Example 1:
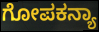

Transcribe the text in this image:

ಗೋಪಕನ್ಯಾ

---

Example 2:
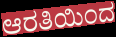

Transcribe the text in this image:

ಆರತಿಯಿಂದ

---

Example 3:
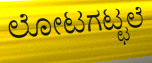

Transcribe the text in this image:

ಲೋಟಗಟ್ಟಲೆ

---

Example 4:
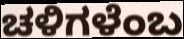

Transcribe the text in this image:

ಚಳಿಗಳೆಂಬ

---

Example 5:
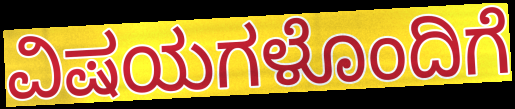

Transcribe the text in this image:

ವಿಷಯಗಳೊಂದಿಗೆ